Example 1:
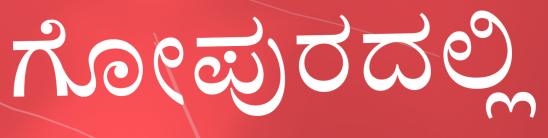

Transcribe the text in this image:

ಗೋಪುರದಲ್ಲಿ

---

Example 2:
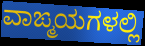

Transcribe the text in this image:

ವಾಙ್ಮಯಗಳಲ್ಲಿ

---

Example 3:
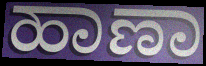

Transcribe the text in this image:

ಹಾಣಾ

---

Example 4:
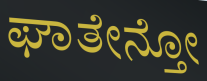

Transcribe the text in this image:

ಘಾತೇನ್ತೋ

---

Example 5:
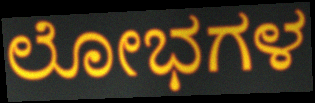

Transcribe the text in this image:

ಲೋಭಗಳ